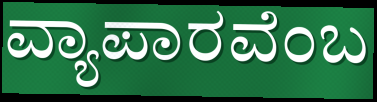
ವ್ಯಾಪಾರವೆಂಬ